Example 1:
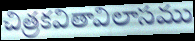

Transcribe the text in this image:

చిత్రకవితావిలాసము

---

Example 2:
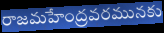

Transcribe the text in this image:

రాజమహేంద్రవరమునకు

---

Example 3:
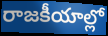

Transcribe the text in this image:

రాజకీయాల్లో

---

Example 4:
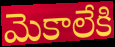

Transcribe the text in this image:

మెకాలేకి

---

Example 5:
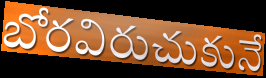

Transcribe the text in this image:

బోరవిరుచుకునే